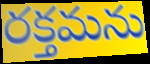
రక్తమను